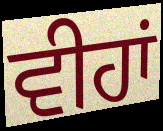
ਵੀਹਾਂ